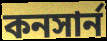
কনসার্ন